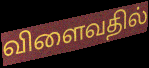
விளைவதில்